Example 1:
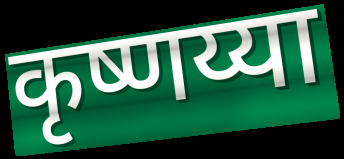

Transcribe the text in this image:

कृष्णय्या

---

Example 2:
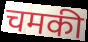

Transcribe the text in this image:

चमकी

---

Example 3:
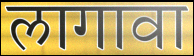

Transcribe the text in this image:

लागावा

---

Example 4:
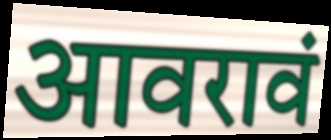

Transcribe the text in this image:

आवरावं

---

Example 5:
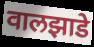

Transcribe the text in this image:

वालझाडे